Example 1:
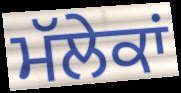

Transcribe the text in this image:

ਮੱਲੇਕਾਂ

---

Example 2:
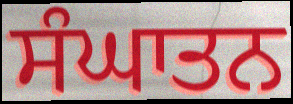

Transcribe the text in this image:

ਸੰਘਾਤਨ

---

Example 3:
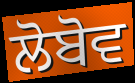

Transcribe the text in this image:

ਲੋਬੋਵ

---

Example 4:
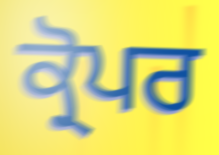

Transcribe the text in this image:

ਕ੍ਰੋਪਰ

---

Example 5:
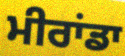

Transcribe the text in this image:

ਮੀਰਾਂਡਾ